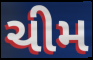
ચીમ